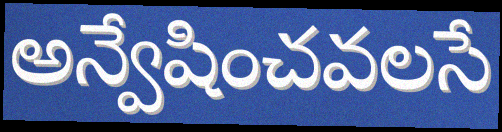
అన్వేషించవలసే